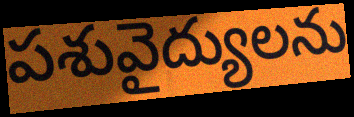
పశువైద్యులను